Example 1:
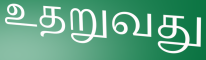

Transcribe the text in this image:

உதறுவது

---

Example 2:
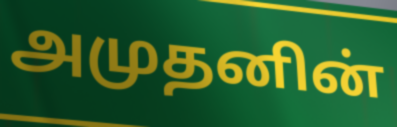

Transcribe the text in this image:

அமுதனின்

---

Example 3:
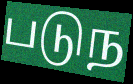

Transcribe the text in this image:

படுந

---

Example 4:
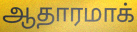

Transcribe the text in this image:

ஆதாரமாக்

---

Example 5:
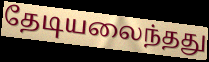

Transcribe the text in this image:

தேடியலைந்தது